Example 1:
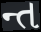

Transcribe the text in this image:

ન્ત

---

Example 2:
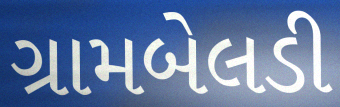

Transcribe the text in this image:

ગ્રામબેલડી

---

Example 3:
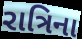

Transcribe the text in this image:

રાત્રિના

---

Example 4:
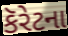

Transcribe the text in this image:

કૅરેટના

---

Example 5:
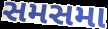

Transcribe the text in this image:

સમસમા